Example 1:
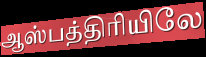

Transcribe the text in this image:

ஆஸ்பத்திரியிலே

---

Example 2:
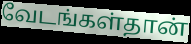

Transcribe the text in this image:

வேடங்கள்தான்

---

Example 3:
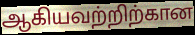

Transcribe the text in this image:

ஆகியவற்றிற்கான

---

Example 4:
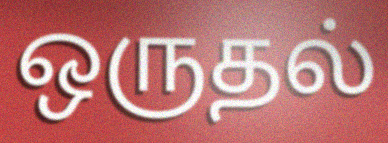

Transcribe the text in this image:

ஒருதல்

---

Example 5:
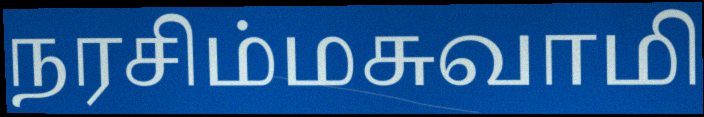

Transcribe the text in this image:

நரசிம்மசுவாமி